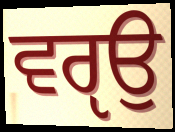
ਵਰੵਉ